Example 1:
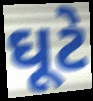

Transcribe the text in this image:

ઘૂટે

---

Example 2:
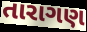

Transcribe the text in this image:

તારાગણ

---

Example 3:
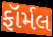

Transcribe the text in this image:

ફૉર્મલ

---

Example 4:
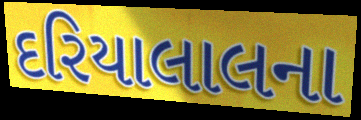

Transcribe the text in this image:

દરિયાલાલના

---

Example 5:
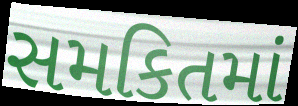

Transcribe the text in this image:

સમકિતમાં